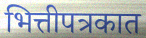
भित्तीपत्रकात